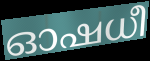
ഓഷധീ